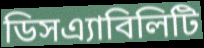
ডিসএ্যাবিলিটি